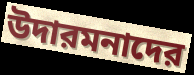
উদারমনাদের